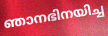
ഞാനഭിനയിച്ച